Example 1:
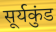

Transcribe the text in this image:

सूर्यकुंड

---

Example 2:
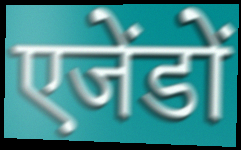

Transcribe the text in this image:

एजेंडों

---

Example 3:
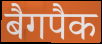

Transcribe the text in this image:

बैगपैक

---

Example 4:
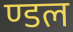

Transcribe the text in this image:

ण्डल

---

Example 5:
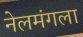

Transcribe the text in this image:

नेलमंगला